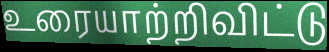
உரையாற்றிவிட்டு